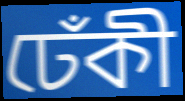
ঢেঁকী